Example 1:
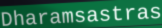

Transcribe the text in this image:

Dharamsastras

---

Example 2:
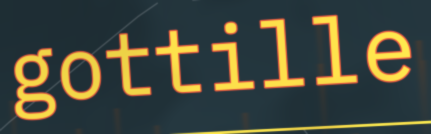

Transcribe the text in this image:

gottille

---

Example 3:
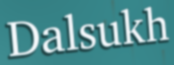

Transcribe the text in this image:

Dalsukh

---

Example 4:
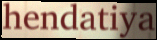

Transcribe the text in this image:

hendatiya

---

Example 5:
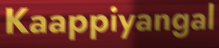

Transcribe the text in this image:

Kaappiyangal